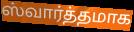
ஸ்வார்த்தமாக